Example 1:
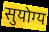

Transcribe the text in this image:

सुयोग्य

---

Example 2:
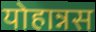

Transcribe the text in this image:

योहान्नस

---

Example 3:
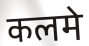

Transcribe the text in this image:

कलमे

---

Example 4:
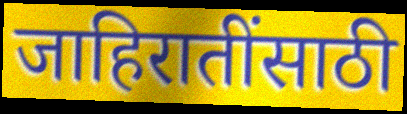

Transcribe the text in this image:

जाहिरातींसाठी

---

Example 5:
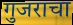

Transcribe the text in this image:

गुजराचा